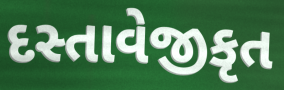
દસ્તાવેજીકૃત